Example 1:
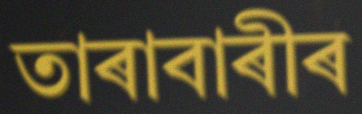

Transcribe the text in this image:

তাৰাবাৰীৰ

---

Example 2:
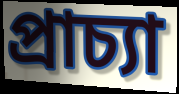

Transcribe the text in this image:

প্ৰাচ্যা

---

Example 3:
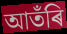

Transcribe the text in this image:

আতঁৰি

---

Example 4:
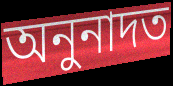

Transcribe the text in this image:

অনুনাদত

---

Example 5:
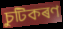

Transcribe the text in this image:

চুটিকৰণ